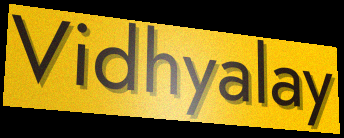
Vidhyalay